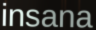
insana